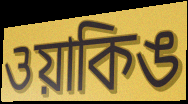
ওয়াকিঙ